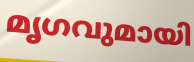
മൃഗവുമായി